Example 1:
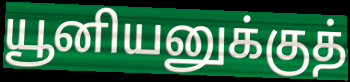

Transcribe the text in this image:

யூனியனுக்குத்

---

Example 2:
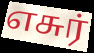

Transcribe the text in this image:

எசுர்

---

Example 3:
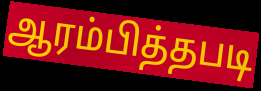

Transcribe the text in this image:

ஆரம்பித்தபடி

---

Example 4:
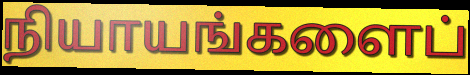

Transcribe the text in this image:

நியாயங்களைப்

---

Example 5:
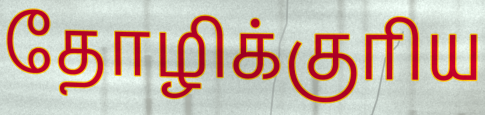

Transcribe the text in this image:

தோழிக்குரிய